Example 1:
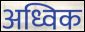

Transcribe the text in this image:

अध्विक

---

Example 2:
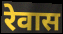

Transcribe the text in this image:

रेवास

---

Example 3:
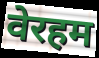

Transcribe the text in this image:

वेरहम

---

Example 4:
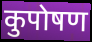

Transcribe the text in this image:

कुपोषण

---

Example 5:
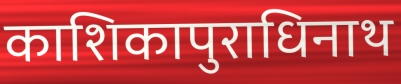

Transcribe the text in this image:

काशिकापुराधिनाथ